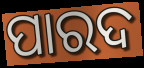
ପାରଦ